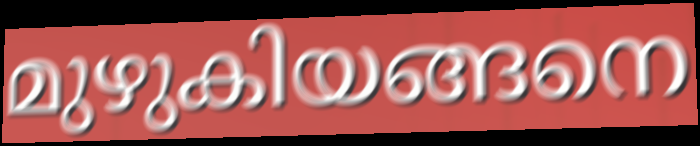
മുഴുകിയങ്ങനെ